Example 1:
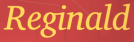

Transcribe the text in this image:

Reginald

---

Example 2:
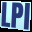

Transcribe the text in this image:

LPI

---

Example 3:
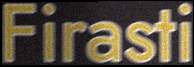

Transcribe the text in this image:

Firasti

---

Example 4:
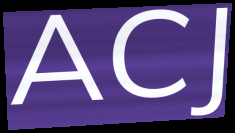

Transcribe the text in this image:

ACJ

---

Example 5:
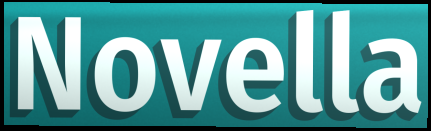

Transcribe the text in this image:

Novella